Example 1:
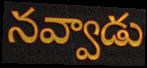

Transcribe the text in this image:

నవ్వాడు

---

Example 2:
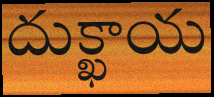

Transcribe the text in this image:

దుక్ఖాయ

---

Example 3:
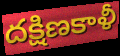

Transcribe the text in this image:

దక్షిణకాళీ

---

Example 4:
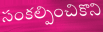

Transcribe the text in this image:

సంకల్పించికొని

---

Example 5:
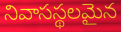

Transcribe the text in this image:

నివాసస్థలమైన